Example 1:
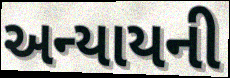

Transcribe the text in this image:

અન્યાયની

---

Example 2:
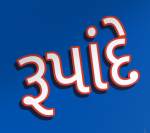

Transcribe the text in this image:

રૂપાંદે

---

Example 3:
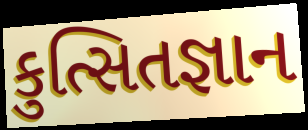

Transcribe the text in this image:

કુત્સિતજ્ઞાન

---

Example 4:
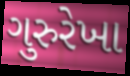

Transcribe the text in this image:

ગુરુરેખા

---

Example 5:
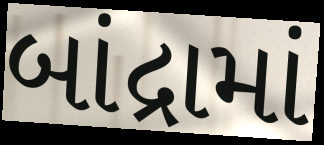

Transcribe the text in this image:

બાંદ્રામાં